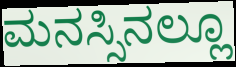
ಮನಸ್ಸಿನಲ್ಲೂ